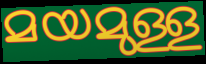
മയമുള്ള